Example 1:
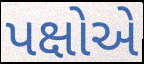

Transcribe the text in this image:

પક્ષોએ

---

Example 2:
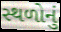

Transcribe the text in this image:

સ્થળોનું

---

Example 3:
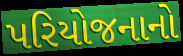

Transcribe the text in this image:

પરિયોજનાનો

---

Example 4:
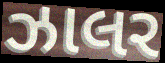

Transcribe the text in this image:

ઝાલર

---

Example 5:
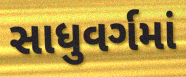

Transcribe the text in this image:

સાધુવર્ગમાં